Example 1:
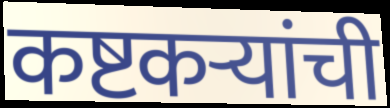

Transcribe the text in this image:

कष्टकऱ्यांची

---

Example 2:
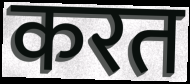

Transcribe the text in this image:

करत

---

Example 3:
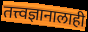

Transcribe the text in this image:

तत्त्वज्ञानालाही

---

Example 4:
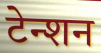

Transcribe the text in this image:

टेन्शन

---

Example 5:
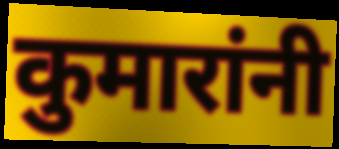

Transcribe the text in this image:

कुमारांनी